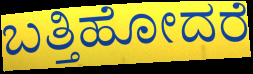
ಬತ್ತಿಹೋದರೆ